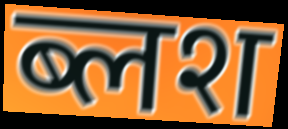
ब्लश